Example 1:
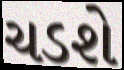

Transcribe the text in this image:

ચડશે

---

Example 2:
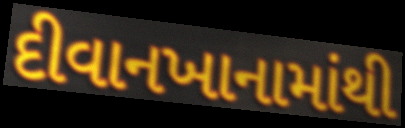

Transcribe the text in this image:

દીવાનખાનામાંથી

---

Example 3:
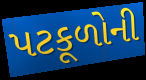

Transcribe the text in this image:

પટકૂળોની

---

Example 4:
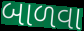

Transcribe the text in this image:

બાળવા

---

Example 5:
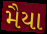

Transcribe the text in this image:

મૈયા